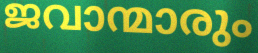
ജവാന്മാരും